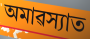
অমাৱস্যাত